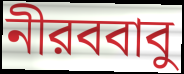
নীরববাবু